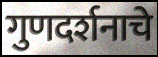
गुणदर्शनाचे